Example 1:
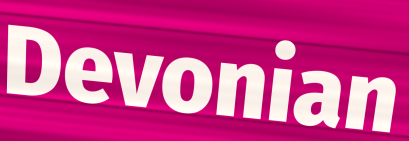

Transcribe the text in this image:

Devonian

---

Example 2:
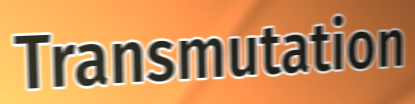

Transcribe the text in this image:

Transmutation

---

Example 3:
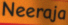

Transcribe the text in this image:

Neeraja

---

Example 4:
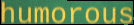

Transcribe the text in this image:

humorous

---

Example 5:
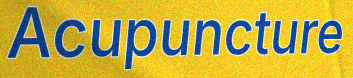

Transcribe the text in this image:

Acupuncture